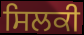
ਸਿਲਕੀ